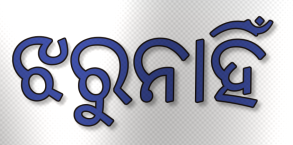
ଝରୁନାହିଁ